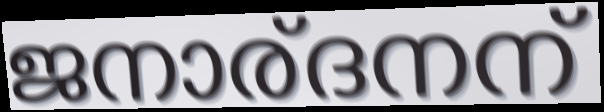
ജനാര്ദനന്